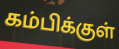
கம்பிக்குள்